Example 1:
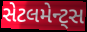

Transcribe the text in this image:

સેટલમેન્ટ્સ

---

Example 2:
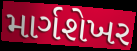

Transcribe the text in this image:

માર્ગશેખર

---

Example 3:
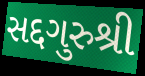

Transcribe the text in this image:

સદ્દગુરુશ્રી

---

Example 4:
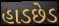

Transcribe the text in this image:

હાડછેડ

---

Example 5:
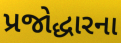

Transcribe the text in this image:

પ્રજોદ્ધારના